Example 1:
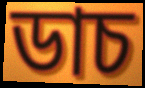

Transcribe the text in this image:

ডাচ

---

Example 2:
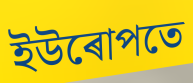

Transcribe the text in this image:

ইউৰোপতে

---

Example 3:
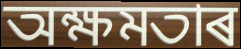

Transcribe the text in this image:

অক্ষমতাৰ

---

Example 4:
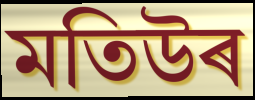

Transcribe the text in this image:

মতিউৰ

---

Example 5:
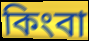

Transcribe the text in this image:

কিংবা